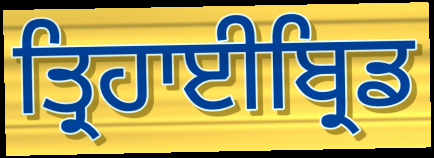
ਤ੍ਰਿਹਾਈਬ੍ਰਿਡ